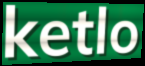
ketlo